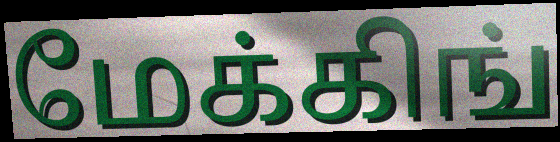
மேக்கிங்